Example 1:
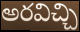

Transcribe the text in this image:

అరవిచ్చి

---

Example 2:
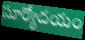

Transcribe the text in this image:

సూర్యోదయం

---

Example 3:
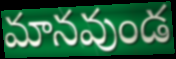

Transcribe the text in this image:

మానవుండ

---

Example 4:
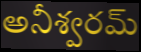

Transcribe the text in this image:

అనీశ్వరమ్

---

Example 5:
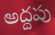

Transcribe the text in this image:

అద్దపు